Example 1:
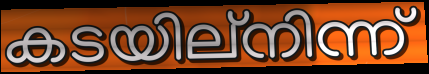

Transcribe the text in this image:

കടയില്നിന്ന്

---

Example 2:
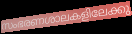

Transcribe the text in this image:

സംഭരണശാലകളിലേക്കു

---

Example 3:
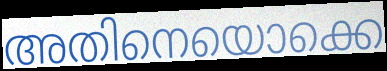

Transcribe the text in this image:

അതിനെയൊക്കെ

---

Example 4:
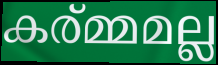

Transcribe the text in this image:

കര്മ്മമല്ല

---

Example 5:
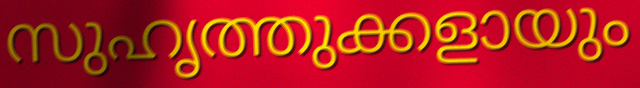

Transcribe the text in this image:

സുഹൃത്തുക്കളായും